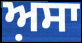
ਅ਼ਸਾ